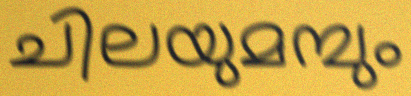
ചിലയുമമ്പും